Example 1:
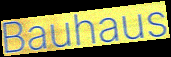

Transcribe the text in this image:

Bauhaus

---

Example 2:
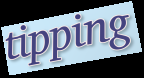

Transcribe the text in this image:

tipping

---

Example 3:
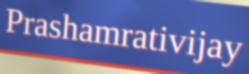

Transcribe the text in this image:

Prashamrativijay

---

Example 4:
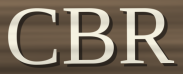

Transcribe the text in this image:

CBR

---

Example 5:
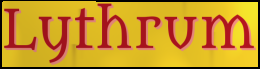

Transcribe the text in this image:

Lythrum